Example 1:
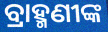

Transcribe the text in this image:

ବ୍ରାହ୍ମଣୀଙ୍କ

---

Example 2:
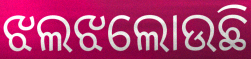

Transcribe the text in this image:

ଝଲଝଲୋଉଛି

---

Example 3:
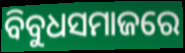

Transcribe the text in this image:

ବିବୁଧସମାଜରେ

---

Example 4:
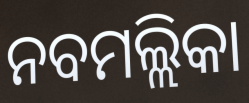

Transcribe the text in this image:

ନବମଲ୍ଲିକା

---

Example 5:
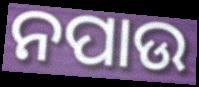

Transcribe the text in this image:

ନପାଉ